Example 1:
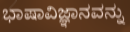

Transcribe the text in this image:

ಭಾಷಾವಿಜ್ಞಾನವನ್ನು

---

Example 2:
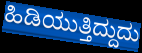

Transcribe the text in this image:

ಹಿಡಿಯುತ್ತಿದ್ದುದು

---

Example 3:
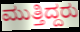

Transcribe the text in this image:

ಮುತ್ತಿದ್ದರು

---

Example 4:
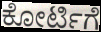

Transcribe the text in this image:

ಕೋರ್ಟಿಗೆ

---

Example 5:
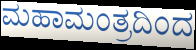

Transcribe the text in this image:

ಮಹಾಮಂತ್ರದಿಂದ